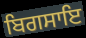
ਬਿਗਸਾਇ